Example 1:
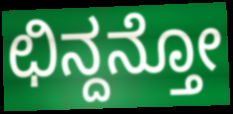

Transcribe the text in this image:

ಛಿನ್ದನ್ತೋ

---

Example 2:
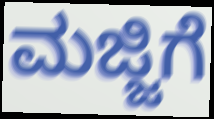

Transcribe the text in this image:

ಮಜ್ಜಿಗೆ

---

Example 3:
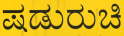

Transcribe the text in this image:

ಷಡುರುಚಿ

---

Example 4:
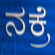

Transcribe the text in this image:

ನಕ್ರೆ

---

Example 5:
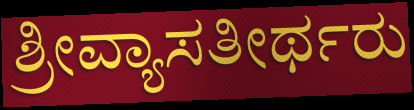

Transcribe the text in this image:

ಶ್ರೀವ್ಯಾಸತೀರ್ಥರು